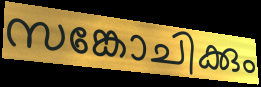
സങ്കോചിക്കും